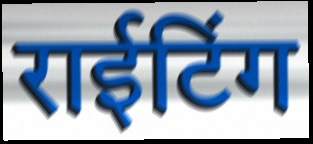
राईटिंग